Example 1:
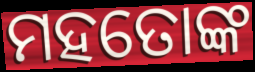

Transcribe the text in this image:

ମହତୋଙ୍କ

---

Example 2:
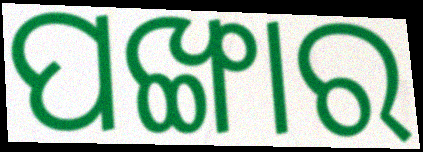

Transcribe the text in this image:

ପଙ୍ଖାର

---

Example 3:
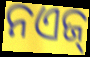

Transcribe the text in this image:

ନଏଜ୍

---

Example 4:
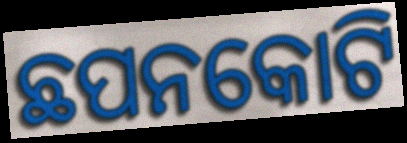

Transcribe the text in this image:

ଛପନକୋଟି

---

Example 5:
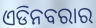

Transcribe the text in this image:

ଏଡିନବରାର